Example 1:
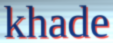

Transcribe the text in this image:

khade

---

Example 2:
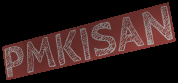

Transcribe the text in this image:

PMKISAN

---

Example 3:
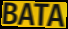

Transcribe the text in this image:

BATA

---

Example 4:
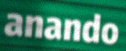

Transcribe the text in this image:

anando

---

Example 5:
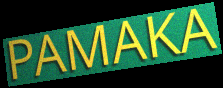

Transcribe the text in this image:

PAMAKA